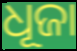
ଧୂଜା